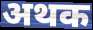
अथक